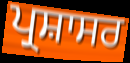
ਪ੍ਰਸ਼ਾਸਰ